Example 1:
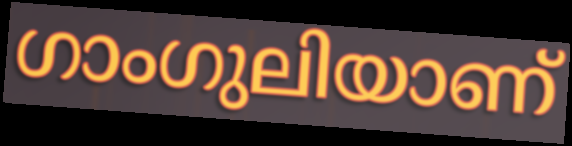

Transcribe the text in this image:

ഗാംഗുലിയാണ്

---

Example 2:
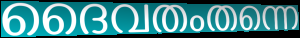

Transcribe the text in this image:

ദൈവതംതന്നെ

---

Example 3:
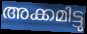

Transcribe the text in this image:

അക്കമിട്ടു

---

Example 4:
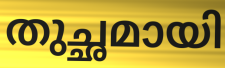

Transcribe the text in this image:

തുച്ഛമായി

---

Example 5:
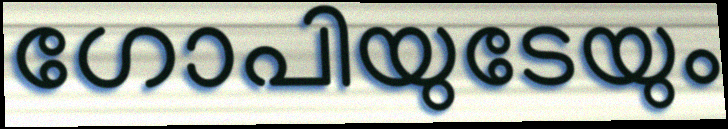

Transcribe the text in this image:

ഗോപിയുടേയും